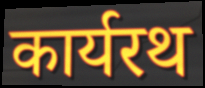
कार्यरथ